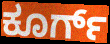
ಕೂರ್ಗ್